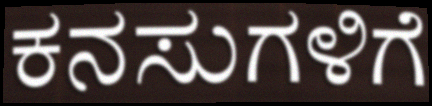
ಕನಸುಗಳಿಗೆ